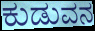
ಕುಡುವನ